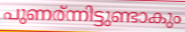
പുണര്ന്നിട്ടുണ്ടാകും